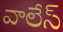
వాలేస్